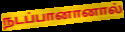
நடப்பானானால்